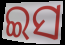
ଇସ